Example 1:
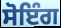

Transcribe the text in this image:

ਸੋਇੰਗ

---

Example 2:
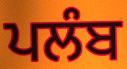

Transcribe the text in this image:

ਪਲੰਬ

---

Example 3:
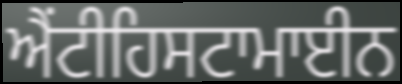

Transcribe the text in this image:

ਐਂਟੀਹਿਸਟਾਮਾਈਨ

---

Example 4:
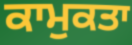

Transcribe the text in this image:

ਕਾਮੁਕਤਾ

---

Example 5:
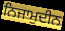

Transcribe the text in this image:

ਨਿਜਾਮੁਦੀਨ